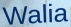
Walia